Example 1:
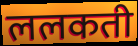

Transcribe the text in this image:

ललकती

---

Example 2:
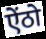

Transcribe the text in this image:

ऐंठो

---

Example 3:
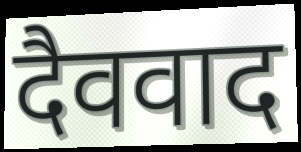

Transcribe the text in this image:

दैववाद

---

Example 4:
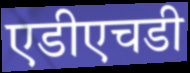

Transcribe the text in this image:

एडीएचडी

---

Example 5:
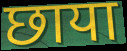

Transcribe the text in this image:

छाया